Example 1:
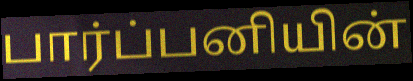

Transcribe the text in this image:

பார்ப்பனியின்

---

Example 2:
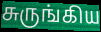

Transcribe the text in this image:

சுருங்கிய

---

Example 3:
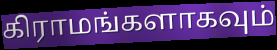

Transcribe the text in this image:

கிராமங்களாகவும்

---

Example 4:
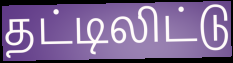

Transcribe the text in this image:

தட்டிலிட்டு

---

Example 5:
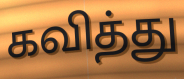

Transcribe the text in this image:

கவித்து